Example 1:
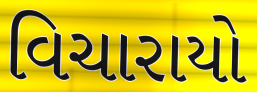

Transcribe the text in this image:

વિચારાયો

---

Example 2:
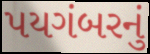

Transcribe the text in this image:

પયગંબરનું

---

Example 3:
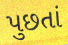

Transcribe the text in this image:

પુછતાં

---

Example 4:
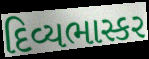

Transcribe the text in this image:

દિવ્યભાસ્કર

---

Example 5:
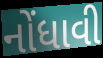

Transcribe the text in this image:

નોંધાવી